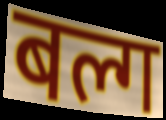
बल्ग